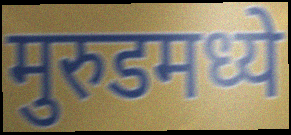
मुरुडमध्ये